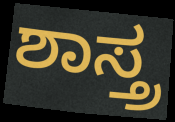
ಶಾಸ್ತ್ರ